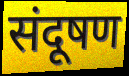
संदूषण